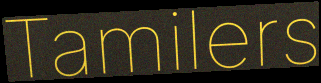
Tamilers